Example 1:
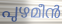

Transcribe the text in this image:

പുഴമീൻ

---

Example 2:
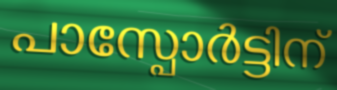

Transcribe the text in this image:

പാസ്പോർട്ടിന്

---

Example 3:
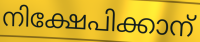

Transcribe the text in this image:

നിക്ഷേപിക്കാന്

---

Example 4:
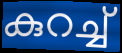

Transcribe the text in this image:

കുറച്ച്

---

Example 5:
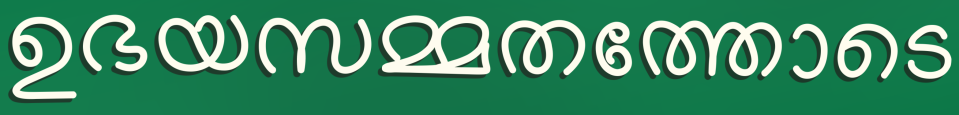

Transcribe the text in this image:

ഉഭയസമ്മതത്തോടെ